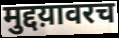
मुद्दय़ावरच